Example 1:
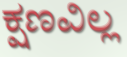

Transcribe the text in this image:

ಕ್ಷಣವಿಲ್ಲ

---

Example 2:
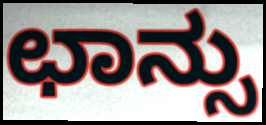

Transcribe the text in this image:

ಛಾನ್ಸು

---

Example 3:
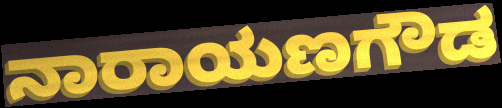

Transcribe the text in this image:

ನಾರಾಯಣಗೌಡ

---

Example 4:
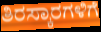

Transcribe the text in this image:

ತಿರಸ್ಕಾರಗಳಿಗೆ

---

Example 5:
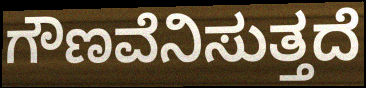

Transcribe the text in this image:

ಗೌಣವೆನಿಸುತ್ತದೆ